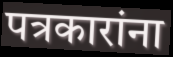
पत्रकारांना